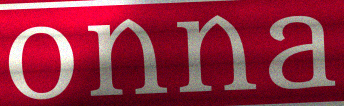
onna